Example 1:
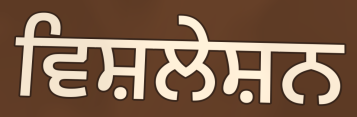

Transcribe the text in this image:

ਵਿਸ਼ਲੇਸ਼ਨ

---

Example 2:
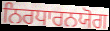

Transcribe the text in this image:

ਨਿਰਧਾਰਨਯੋਗ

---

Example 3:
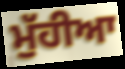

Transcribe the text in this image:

ਮੁੱਹੀਆ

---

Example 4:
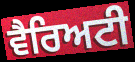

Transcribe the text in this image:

ਵੈਰਿਅਟੀ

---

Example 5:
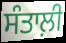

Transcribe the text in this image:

ਸੰਤਾਲ਼ੀ